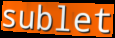
sublet